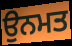
ਉਨਮਤ